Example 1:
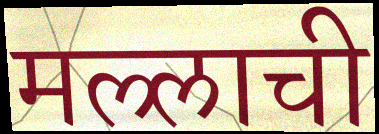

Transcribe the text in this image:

मल्लाची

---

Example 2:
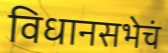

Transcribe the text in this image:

विधानसभेचं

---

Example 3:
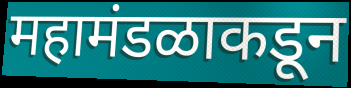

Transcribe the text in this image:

महामंडळाकडून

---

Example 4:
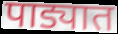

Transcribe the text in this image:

पाड्यात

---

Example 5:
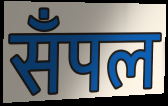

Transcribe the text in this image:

सँपल